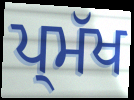
ਪ੍ਮੱਖ